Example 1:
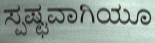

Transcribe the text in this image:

ಸ್ಪಷ್ಟವಾಗಿಯೂ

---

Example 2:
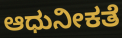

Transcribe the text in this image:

ಆಧುನೀಕತೆ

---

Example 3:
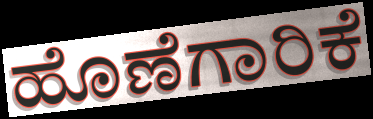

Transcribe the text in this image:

ಹೊಣೆಗಾರಿಕೆ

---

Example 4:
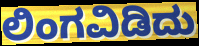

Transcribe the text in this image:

ಲಿಂಗವಿಡಿದು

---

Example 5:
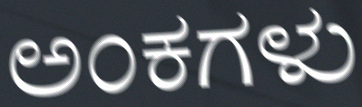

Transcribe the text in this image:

ಅಂಕಗಳು